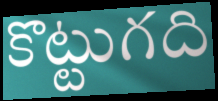
కొట్టుగది